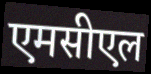
एमसीएल